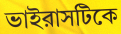
ভাইরাসটিকে